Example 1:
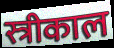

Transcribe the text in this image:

स्त्रीकाल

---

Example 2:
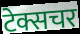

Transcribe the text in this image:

टेक्सचर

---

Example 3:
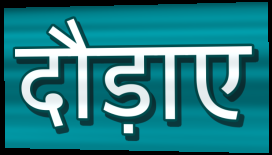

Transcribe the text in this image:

दौड़ाए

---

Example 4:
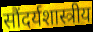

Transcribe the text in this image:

सौंदर्यशास्त्रीय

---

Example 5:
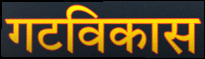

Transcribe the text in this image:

गटविकास